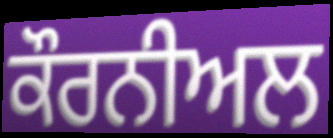
ਕੌਰਨੀਅਲ